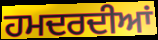
ਹਮਦਰਦੀਆਂ